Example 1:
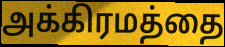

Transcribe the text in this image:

அக்கிரமத்தை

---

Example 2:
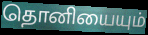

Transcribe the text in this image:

தொனியையும்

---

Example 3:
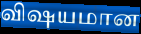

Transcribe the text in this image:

விஷயமான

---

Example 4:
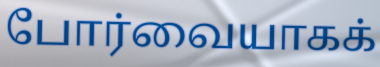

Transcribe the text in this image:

போர்வையாகக்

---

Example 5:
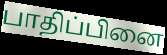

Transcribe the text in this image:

பாதிப்பினை